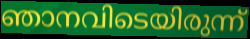
ഞാനവിടെയിരുന്ന്